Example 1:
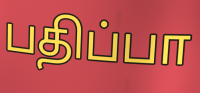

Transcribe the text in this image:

பதிப்பா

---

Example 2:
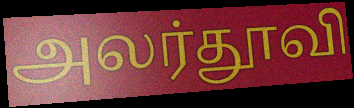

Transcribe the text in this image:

அலர்தூவி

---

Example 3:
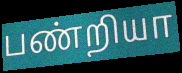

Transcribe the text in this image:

பண்றியா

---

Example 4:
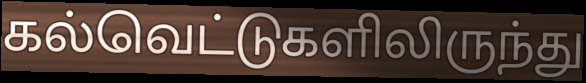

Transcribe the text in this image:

கல்வெட்டுகளிலிருந்து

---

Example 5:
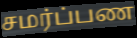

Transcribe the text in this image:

சமர்ப்பண